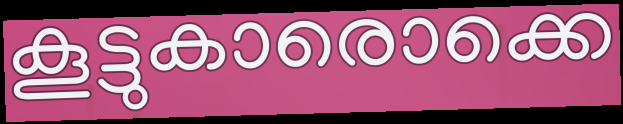
കൂട്ടുകാരൊക്കെ